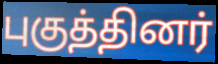
புகுத்தினர்